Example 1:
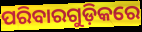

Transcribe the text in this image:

ପରିବାରଗୁଡ଼ିକରେ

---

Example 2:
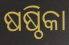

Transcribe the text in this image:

ଷଷ୍ଠିକା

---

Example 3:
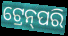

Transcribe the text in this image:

ଟ୍ରେନ୍‌ପରି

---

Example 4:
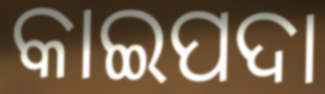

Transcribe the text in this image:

କାଇପଦା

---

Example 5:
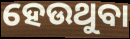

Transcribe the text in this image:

ହେଉଥୁବା